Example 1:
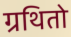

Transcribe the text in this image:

ग्रथितो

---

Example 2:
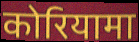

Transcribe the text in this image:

कोरियामा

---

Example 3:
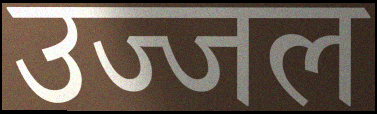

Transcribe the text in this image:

उज्जल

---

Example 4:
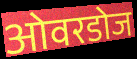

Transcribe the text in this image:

ओवरडोज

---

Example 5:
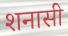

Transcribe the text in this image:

शनासी